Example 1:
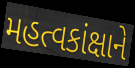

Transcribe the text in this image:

મહત્વકાંક્ષાને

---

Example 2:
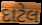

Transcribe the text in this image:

દાટેલ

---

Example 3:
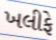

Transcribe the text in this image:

ખલીફે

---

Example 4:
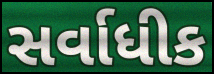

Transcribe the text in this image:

સર્વાધીક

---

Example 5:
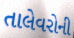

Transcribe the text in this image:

તાલેવરોની